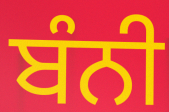
ਬੰਨੀ